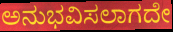
ಅನುಭವಿಸಲಾಗದೇ